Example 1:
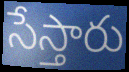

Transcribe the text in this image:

సేస్తారు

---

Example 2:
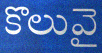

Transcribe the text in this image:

కొలువై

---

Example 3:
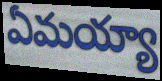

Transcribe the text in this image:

ఏమయ్యా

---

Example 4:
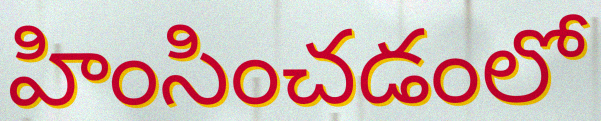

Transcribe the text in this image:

హింసించడంలో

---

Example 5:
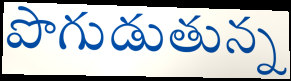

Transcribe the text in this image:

పొగుడుతున్న